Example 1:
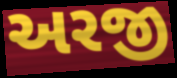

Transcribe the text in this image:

અરજી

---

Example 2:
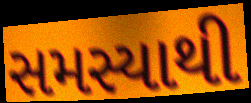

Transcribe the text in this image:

સમસ્યાથી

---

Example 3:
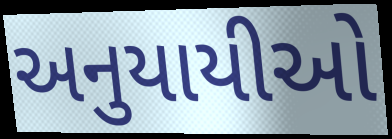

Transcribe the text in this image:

અનુયાયીઓ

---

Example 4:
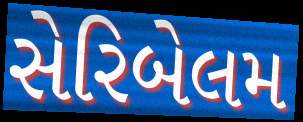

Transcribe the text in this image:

સેરિબેલમ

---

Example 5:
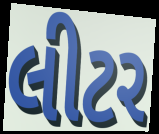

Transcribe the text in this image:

લીટર